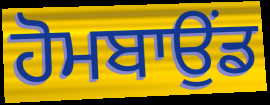
ਹੋਮਬਾਉਂਡ